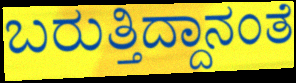
ಬರುತ್ತಿದ್ದಾನಂತೆ